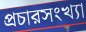
প্রচারসংখ্যা